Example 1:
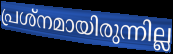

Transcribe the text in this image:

പ്രശ്നമായിരുന്നില്ല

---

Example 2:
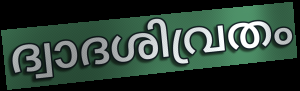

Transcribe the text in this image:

ദ്വാദശിവ്രതം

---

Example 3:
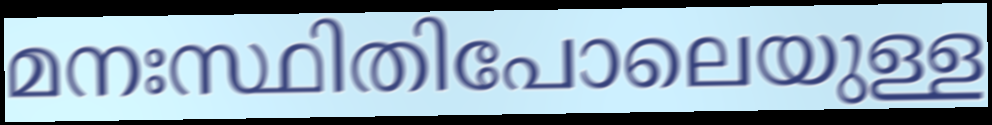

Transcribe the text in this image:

മനഃസ്ഥിതിപോലെയുള്ള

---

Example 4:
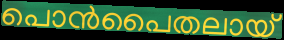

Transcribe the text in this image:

പൊൻപൈതലായ്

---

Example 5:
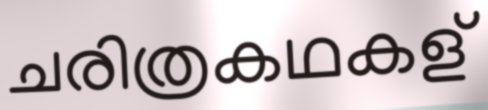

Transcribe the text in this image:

ചരിത്രകഥകള്